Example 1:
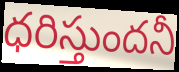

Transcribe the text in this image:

ధరిస్తుందనీ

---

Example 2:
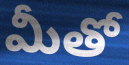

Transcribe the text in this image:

మీతో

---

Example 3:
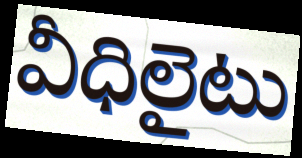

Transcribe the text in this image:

వీధిలైటు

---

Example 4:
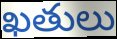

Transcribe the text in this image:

ఖతులు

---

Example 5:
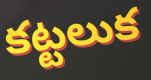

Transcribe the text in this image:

కట్టలుక